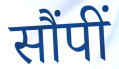
सौंपीं